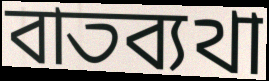
বাতব্যথা